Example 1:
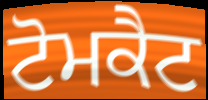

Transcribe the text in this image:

ਟੋਮਕੈਟ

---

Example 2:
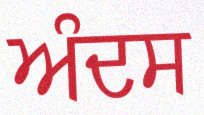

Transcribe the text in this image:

ਅੰਦਸ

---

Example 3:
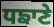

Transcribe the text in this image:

ਧਙਾਣੇ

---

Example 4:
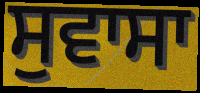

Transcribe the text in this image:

ਸੁਵਾਸਾ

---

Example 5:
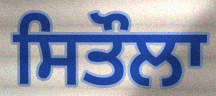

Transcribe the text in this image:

ਸਿਤੌਲਾ